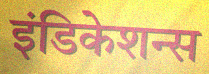
इंडिकेशन्स